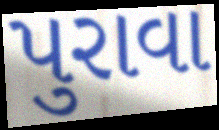
પુરાવા